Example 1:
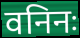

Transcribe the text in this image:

वनिनः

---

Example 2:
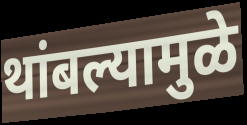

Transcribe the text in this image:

थांबल्यामुळे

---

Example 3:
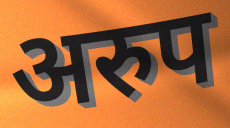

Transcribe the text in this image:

अरुप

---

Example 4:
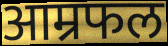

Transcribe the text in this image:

आम्रफल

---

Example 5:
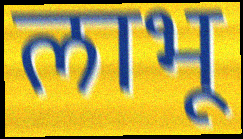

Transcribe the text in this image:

लाभू